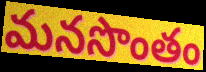
మనసొంతం